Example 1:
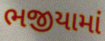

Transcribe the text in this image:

ભજીયામાં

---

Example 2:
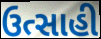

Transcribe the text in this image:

ઉત્સાહી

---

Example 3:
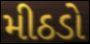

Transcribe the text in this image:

મીઠડો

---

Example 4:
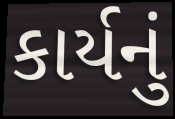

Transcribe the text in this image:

કાર્યનું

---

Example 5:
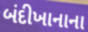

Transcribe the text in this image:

બંદીખાનાના